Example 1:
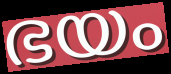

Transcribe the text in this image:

ഭയം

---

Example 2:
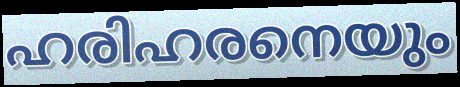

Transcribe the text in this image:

ഹരിഹരനെയും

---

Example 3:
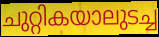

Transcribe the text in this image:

ചുറ്റികയാലുടച്ച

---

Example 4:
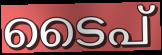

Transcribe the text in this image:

ടൈപ്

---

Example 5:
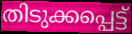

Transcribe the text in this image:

തിടുക്കപ്പെട്ട്